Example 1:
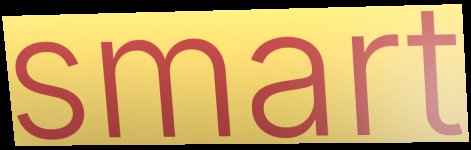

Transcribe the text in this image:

smart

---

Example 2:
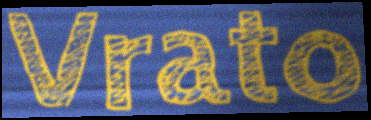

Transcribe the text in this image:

Vrato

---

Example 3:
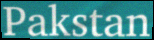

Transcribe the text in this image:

Pakstan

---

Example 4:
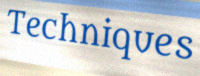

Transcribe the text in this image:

Techniques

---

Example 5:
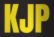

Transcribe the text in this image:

KJP